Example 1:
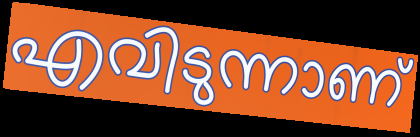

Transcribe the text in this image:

എവിടുന്നാണ്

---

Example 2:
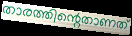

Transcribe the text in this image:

താരത്തിന്റെതാണത്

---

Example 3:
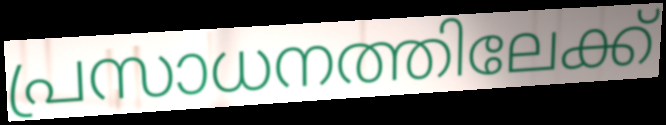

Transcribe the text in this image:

പ്രസാധനത്തിലേക്ക്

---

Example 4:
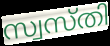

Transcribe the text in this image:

സ്വസ്തി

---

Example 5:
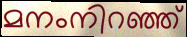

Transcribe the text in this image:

മനംനിറഞ്ഞ്